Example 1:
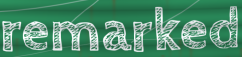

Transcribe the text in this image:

remarked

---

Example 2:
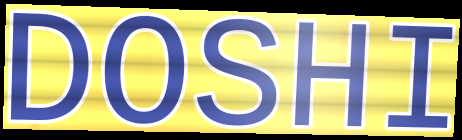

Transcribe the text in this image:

DOSHI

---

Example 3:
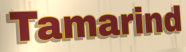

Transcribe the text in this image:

Tamarind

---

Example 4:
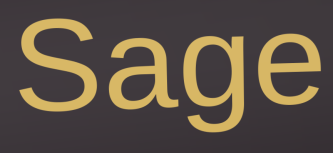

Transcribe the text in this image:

Sage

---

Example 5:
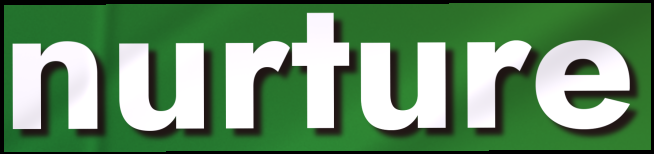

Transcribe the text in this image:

nurture